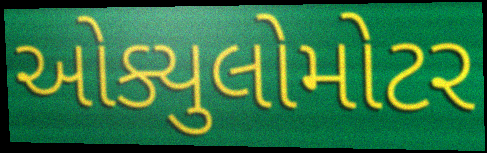
ઓક્યુલોમોટર